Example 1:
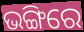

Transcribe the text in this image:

ଭଙ୍ଗିରେ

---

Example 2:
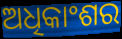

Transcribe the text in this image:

ଅଧିକାଂଶର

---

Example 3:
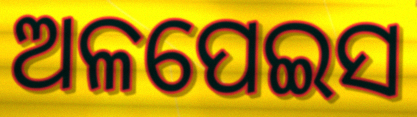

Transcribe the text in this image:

ଅଳପେଇସ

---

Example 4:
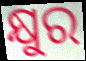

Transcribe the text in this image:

କ୍ଷୁର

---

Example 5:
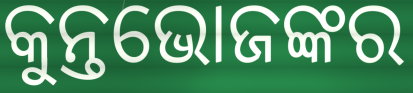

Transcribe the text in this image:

କୁନ୍ତଭୋଜଙ୍କର